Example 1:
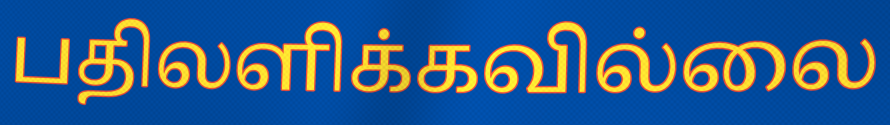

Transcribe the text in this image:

பதிலளிக்கவில்லை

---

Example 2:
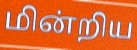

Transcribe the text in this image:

மின்றிய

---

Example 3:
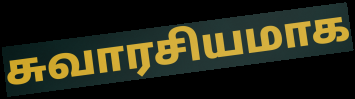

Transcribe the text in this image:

சுவாரசியமாக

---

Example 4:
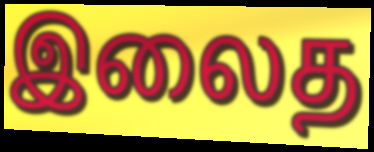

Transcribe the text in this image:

இலைத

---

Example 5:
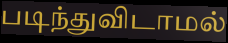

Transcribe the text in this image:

படிந்துவிடாமல்